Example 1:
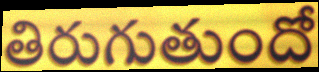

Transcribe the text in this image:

తిరుగుతుందో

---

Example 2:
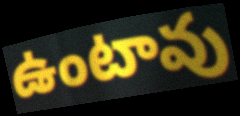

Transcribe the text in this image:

ఉంటావు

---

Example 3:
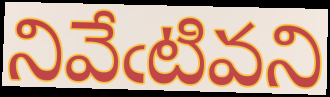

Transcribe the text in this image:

నివేఁటివని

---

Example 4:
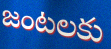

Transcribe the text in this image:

జంటలకు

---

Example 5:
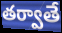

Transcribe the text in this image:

తర్వాతే